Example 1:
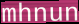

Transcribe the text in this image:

mhnun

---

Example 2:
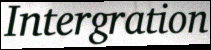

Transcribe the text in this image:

Intergration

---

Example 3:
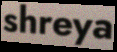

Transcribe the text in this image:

shreya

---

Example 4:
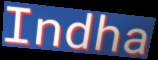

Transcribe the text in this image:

Indha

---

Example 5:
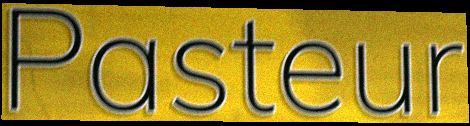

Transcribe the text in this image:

Pasteur